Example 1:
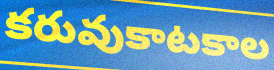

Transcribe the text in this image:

కరువుకాటకాల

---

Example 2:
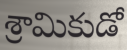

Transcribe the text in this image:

శ్రామికుడో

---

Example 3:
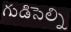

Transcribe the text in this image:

గుడిసెల్ని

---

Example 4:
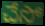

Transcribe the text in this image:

చేసో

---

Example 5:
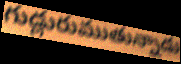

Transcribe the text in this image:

గుడ్లురుముతున్నాడు